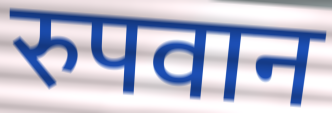
रुपवान